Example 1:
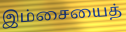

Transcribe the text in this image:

இம்சையைத்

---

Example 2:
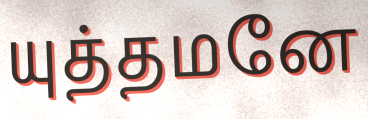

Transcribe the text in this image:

யுத்தமனே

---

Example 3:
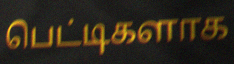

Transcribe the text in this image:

பெட்டிகளாக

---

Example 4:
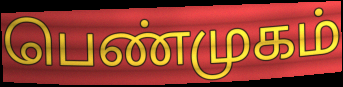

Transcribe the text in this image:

பெண்முகம்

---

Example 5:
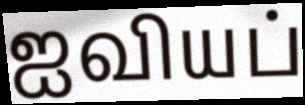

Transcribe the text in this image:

ஐவியப்